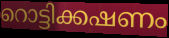
റൊട്ടിക്കഷണം